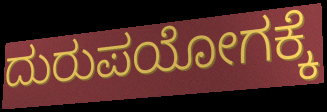
ದುರುಪಯೋಗಕ್ಕೆ